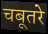
चबूतरे